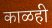
काळही